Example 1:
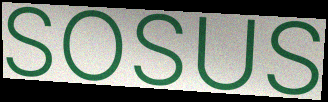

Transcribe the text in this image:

SOSUS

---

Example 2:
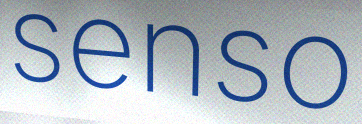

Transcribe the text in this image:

senso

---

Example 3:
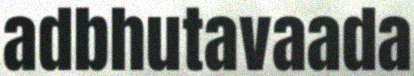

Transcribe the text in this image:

adbhutavaada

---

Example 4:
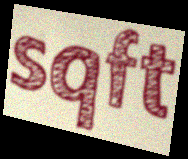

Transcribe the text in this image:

sqft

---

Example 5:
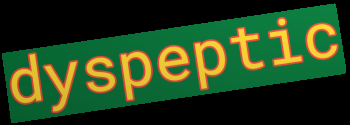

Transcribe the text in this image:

dyspeptic